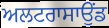
ਅਲਟਰਾਸਾਉਂਡ